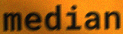
median